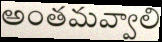
అంతమవ్వాలి